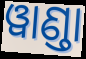
ୱାଣ୍ଡା